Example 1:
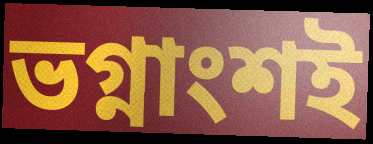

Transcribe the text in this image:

ভগ্নাংশই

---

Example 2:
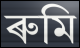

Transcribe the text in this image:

ৰুমি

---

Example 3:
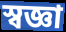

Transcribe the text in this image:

স্বজ্ঞা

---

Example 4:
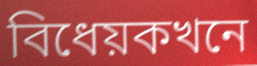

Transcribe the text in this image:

বিধেয়কখনে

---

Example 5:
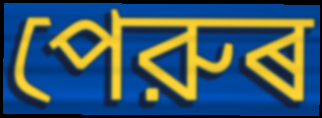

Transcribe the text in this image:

পেৰুৰ